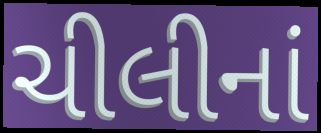
ચીલીનાં